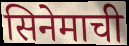
सिनेमाची